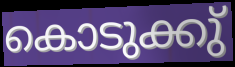
കൊടുക്കു്